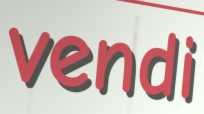
vendi